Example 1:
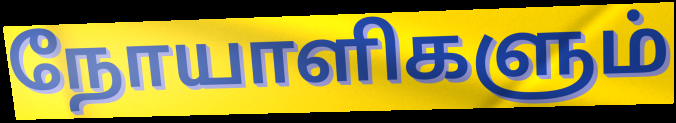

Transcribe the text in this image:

நோயாளிகளும்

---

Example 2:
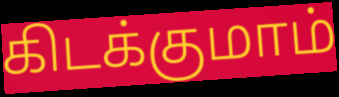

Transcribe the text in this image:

கிடக்குமாம்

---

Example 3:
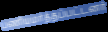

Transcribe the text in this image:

பணியமர்த்தப்பட்டனர்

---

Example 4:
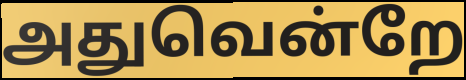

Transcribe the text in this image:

அதுவென்றே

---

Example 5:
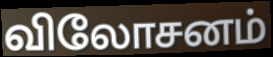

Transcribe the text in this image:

விலோசனம்